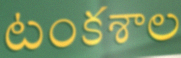
టంకశాల